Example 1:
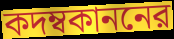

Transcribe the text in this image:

কদম্বকাননের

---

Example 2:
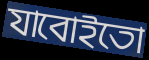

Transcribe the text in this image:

যাবোইতো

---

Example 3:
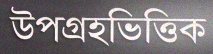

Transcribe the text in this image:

উপগ্রহভিত্তিক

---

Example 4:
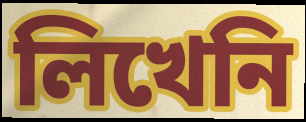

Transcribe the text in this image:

লিখেনি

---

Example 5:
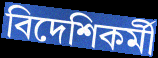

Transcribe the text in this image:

বিদেশিকর্মী